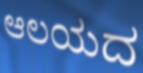
ಆಲಯದ